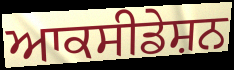
ਆਕਸੀਡੇਸ਼ਨ